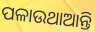
ପଳାଉଥାଆନ୍ତି